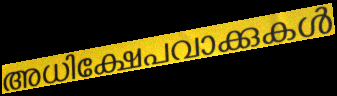
അധിക്ഷേപവാക്കുകൾ